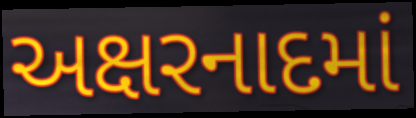
અક્ષરનાદમાં